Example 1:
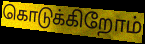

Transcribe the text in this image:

கொடுக்கிறோம்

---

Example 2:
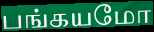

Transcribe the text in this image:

பங்கயமோ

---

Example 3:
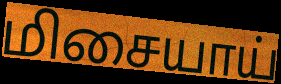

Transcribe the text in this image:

மிசையாய்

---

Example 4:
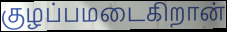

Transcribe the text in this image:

குழப்பமடைகிறான்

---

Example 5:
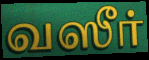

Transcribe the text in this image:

வஸீர்